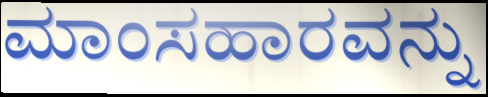
ಮಾಂಸಹಾರವನ್ನು